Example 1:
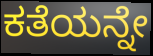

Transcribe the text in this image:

ಕತೆಯನ್ನೇ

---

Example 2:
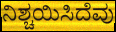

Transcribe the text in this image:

ನಿಶ್ಚಯಿಸಿದೆವು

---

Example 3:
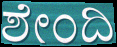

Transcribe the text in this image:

ಶೇಂದಿ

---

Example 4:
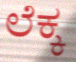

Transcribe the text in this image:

ಲೆಕ್ಕ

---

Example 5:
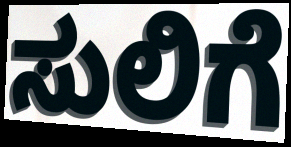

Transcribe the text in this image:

ಸುಲಿಗೆ